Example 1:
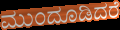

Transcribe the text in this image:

ಮುಂದೂಡಿದರೆ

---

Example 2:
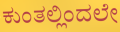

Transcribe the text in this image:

ಕುಂತಲ್ಲಿಂದಲೇ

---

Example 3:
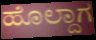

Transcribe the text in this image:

ಹೊಲ್ದಾಗ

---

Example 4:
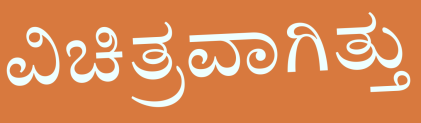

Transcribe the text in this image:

ವಿಚಿತ್ರವಾಗಿತ್ತು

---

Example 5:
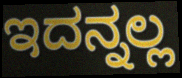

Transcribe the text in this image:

ಇದನ್ನಲ್ಲ